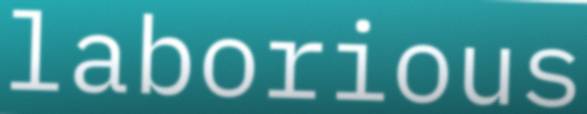
laborious